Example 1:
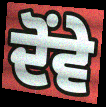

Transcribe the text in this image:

ਦੋਂਵੇ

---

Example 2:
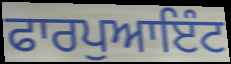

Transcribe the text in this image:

ਫਾਰਪੁਆਇੰਟ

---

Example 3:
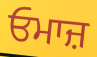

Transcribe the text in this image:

ਓਮਾਜ਼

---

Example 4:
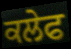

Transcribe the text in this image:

ਕਲੇਫ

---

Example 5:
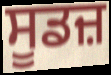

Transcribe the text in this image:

ਸੂਡਜ਼